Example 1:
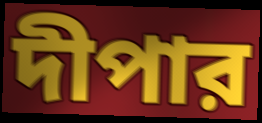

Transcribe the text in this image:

দীপার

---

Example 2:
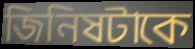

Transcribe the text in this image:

জিনিষটাকে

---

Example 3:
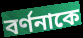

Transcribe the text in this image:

বর্ণনাকে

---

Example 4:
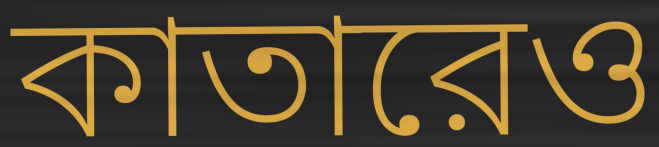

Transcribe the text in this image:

কাতারেও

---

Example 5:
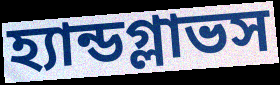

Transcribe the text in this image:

হ্যান্ডগ্লাভস